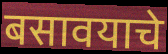
बसावयाचे